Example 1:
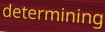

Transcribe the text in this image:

determining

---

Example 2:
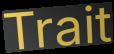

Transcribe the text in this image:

Trait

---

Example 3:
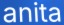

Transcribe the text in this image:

anita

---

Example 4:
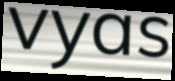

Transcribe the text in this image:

vyas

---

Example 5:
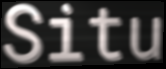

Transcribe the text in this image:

Situ